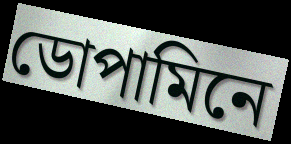
ডোপামিনে